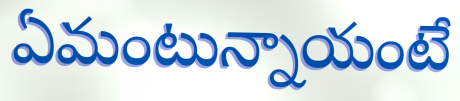
ఏమంటున్నాయంటే